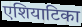
एशियाटिका